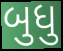
બુધુ